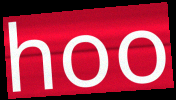
hoo